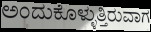
ಅಂದುಕೊಳ್ಳುತ್ತಿರುವಾಗ